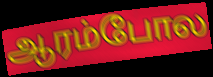
ஆரம்போல